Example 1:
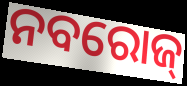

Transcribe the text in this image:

ନବରୋଜ୍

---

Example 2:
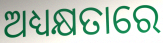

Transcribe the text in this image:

ଅଧ୍ଯକ୍ଷତାରେ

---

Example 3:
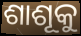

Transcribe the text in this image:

ଶାଶୂକୁ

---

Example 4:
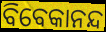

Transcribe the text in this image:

ବିବେକାନନ୍ଦ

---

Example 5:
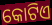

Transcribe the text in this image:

କୋଟିଏ